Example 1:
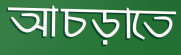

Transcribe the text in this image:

আচড়াতে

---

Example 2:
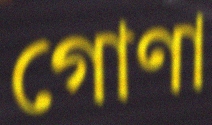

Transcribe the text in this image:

গোণা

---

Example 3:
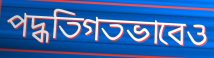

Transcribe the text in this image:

পদ্ধতিগতভাবেও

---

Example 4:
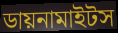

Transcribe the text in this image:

ডায়নামাইটস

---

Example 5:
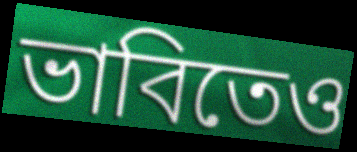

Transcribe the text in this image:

ভাবিতেও